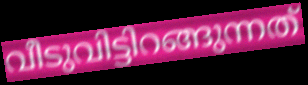
വീടുവിട്ടിറങ്ങുന്നത്